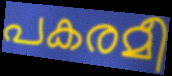
പകരമീ